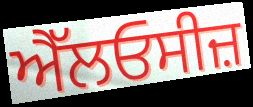
ਐੱਲਓਸੀਜ਼